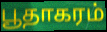
பூதாகரம்